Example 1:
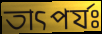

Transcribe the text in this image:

তাৎপর্যঃ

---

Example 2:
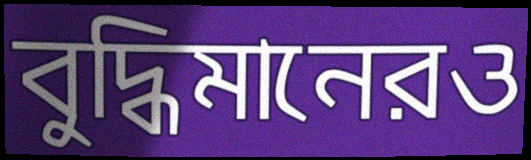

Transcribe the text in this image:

বুদ্ধিমানেরও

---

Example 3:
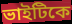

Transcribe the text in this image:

ভাইটিকে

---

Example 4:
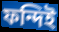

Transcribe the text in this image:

ফন্দিই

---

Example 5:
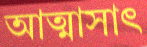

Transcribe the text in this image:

আত্মাসাৎ